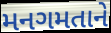
મનગમતાને